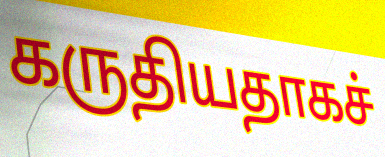
கருதியதாகச்